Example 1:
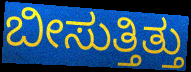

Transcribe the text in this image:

ಬೀಸುತ್ತಿತ್ತು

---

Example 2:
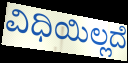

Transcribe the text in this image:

ವಿಧಿಯಿಲ್ಲದೆ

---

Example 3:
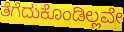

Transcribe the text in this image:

ತೆಗೆದುಕೊಂಡಿಲ್ಲವೇ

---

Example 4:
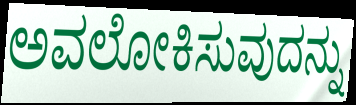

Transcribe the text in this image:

ಅವಲೋಕಿಸುವುದನ್ನು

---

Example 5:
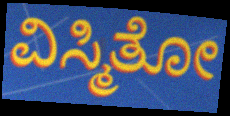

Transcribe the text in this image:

ವಿಸ್ಮಿತೋ